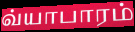
வ்யாபாரம்